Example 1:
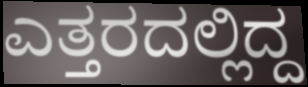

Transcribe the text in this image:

ಎತ್ತರದಲ್ಲಿದ್ದ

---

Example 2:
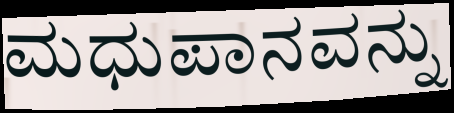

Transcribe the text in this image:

ಮಧುಪಾನವನ್ನು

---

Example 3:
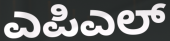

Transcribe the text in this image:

ಎಪಿಎಲ್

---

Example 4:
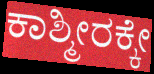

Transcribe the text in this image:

ಕಾಶ್ಮೀರಕ್ಕೇ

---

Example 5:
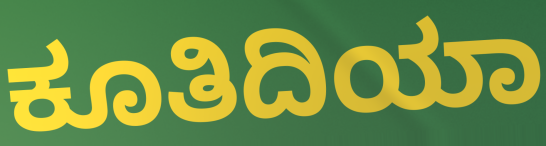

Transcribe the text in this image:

ಕೂತಿದಿಯಾ